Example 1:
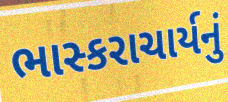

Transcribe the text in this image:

ભાસ્કરાચાર્યનું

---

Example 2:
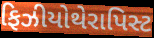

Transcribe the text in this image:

ફિઝીયોથેરાપિસ્ટ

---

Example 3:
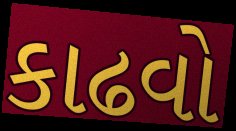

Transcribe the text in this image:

કાઢવો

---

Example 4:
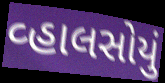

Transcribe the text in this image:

વ્હાલસોયું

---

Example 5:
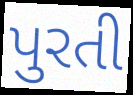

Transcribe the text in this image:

પુરતી